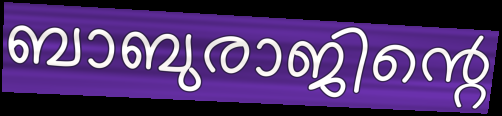
ബാബുരാജിന്റെ